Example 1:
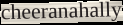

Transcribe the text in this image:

cheeranahally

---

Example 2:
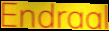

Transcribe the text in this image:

Endraal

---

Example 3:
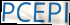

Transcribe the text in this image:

PCEPI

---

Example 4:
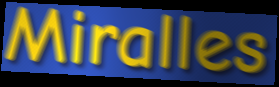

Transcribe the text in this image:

Miralles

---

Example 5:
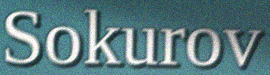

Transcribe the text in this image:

Sokurov